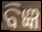
ବିଜ୍ଞ